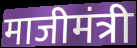
माजीमंत्री